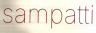
sampatti